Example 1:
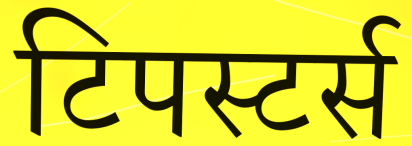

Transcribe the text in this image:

टिपस्टर्स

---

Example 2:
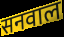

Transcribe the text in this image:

सनवाल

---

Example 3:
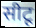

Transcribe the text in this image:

सीटू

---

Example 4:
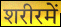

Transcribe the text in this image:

शरीरमें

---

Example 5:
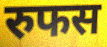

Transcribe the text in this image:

रुफस